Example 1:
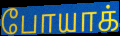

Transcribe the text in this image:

போயாக்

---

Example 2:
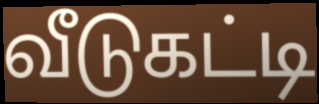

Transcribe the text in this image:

வீடுகட்டி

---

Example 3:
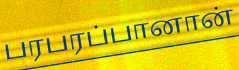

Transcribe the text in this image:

பரபரப்பானான்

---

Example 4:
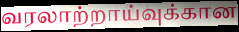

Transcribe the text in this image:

வரலாற்றாய்வுக்கான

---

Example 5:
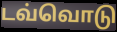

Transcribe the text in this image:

டவ்வொடு